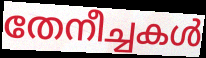
തേനീച്ചകൾ